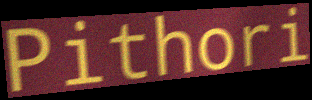
Pithori